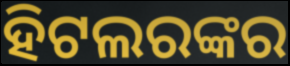
ହିଟଲରଙ୍କର